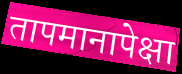
तापमानापेक्षा